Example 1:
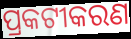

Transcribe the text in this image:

ପ୍ରକଟୀକରଣ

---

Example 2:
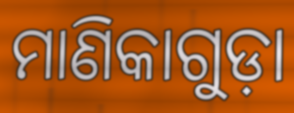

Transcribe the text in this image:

ମାଣିକାଗୁଡ଼ା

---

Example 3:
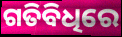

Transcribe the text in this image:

ଗତିବିଧିରେ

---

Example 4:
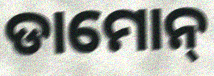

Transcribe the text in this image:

ଡାମୋନ୍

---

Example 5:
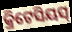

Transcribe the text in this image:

କ୍ରିଟେସିୟସ୍